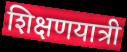
शिक्षणयात्री